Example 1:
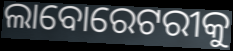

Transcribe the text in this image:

ଲାବୋରେଟରୀକୁ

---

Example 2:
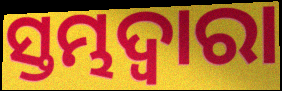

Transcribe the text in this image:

ସ୍ତମ୍ଭଦ୍ୱାରା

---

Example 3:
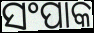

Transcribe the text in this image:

ସଂପାକ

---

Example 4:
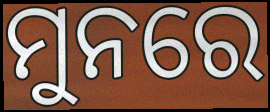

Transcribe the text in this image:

ମୁନରେ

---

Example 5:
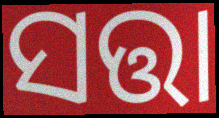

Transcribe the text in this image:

ସତ୍ତା